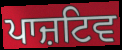
ਪਾਜ਼ਟਿਵ